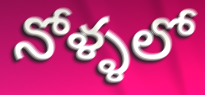
నోళ్ళలో